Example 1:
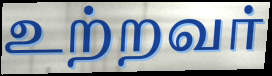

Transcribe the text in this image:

உற்றவர்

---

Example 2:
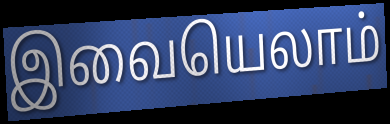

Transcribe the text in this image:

இவையெலாம்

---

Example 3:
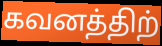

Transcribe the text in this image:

கவனத்திற்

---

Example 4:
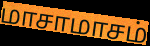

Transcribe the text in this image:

மாசாமாசம்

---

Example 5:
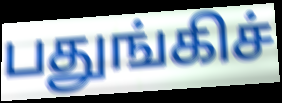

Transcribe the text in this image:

பதுங்கிச்